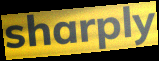
sharply